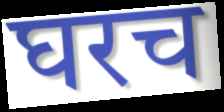
घरच